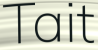
Tait